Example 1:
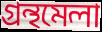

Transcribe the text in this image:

গ্ৰন্থমেলা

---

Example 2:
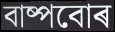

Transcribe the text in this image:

বাষ্পবোৰ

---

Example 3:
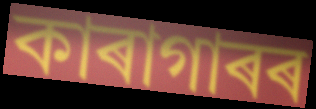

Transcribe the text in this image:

কাৰাগাৰৰ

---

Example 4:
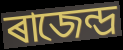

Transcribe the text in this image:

ৰাজেন্দ্ৰ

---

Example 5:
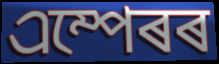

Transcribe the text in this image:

এম্পেৰৰ